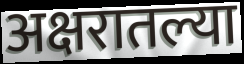
अक्षरातल्या